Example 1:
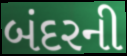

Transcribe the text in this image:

બંદરની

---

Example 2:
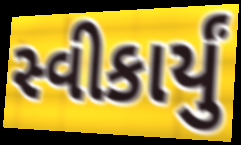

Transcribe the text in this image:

સ્વીકાર્યું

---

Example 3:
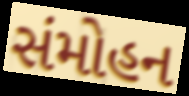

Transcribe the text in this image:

સંમોહન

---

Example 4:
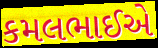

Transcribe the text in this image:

કમલભાઈએ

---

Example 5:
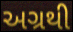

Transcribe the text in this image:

અગ્રથી